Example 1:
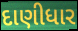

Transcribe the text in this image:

દાણીધાર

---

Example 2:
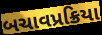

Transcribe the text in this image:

બચાવપ્રક્રિયા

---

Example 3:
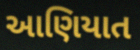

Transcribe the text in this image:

આણિયાત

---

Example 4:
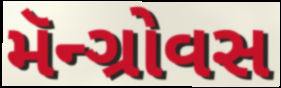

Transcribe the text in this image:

મૅન્ગ્રોવસ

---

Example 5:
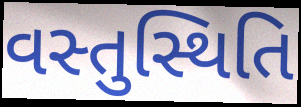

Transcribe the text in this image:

વસ્તુસ્થિતિ